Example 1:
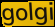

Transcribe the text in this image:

golgi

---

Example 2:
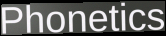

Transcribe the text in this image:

Phonetics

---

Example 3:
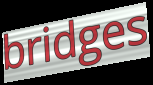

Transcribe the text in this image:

bridges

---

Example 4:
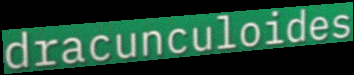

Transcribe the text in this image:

dracunculoides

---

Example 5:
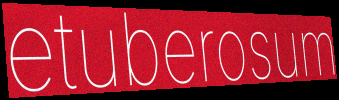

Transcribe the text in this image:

etuberosum